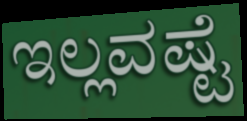
ಇಲ್ಲವಷ್ಟೆ